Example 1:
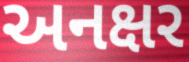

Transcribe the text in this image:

અનક્ષર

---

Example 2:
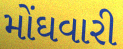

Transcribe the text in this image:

મોંઘવારી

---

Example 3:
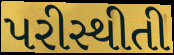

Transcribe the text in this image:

પરીસ્થીતી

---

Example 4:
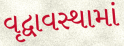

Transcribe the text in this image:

વૃદ્વાવસ્થામાં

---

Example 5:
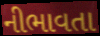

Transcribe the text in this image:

નીભાવતા